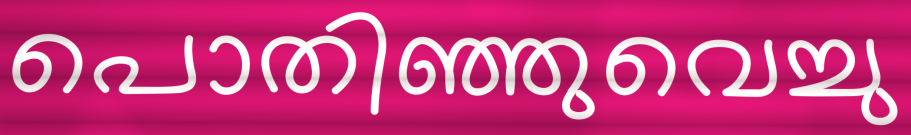
പൊതിഞ്ഞുവെച്ചു